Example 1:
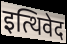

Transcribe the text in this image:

इत्थिवेद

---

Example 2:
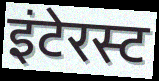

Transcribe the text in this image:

इंटेरस्ट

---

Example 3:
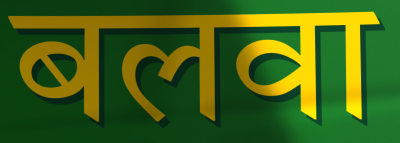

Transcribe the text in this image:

बलवा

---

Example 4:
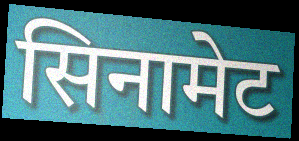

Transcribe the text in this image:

सिनामेट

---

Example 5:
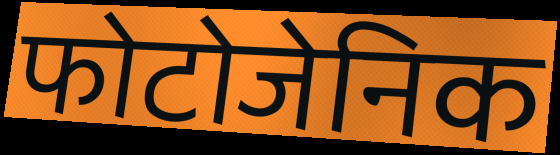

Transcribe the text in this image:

फोटोजेनिक